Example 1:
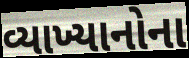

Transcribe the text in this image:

વ્યાખ્યાનોના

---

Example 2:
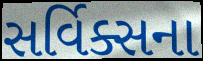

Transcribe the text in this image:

સર્વિક્સના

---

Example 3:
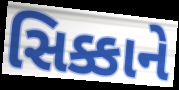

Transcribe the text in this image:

સિક્કાને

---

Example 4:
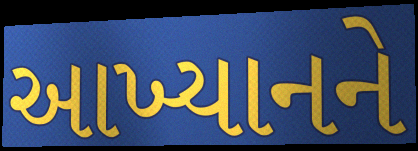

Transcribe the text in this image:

આખ્યાનને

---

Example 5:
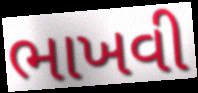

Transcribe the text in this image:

ભાખવી